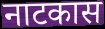
नाटकास